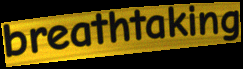
breathtaking